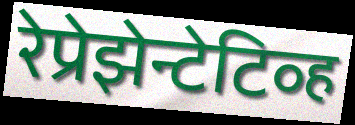
रेप्रेझेन्टेटिव्ह